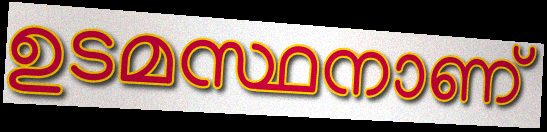
ഉടമസ്ഥനാണ്